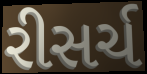
રીસર્ચ